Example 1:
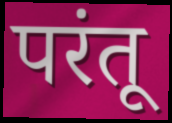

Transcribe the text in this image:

परंतू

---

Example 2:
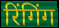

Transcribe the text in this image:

रिंगिंग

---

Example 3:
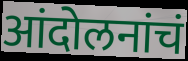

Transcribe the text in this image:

आंदोलनांचं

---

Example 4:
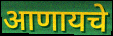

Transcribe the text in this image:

आणायचे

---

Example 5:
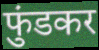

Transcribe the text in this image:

फुंडकर